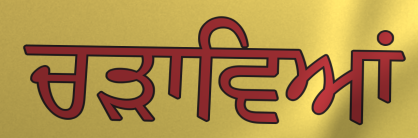
ਚੜਾਵਿਆਂ